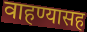
वाहण्यासह